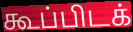
கூப்பிடக்